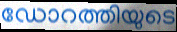
ഡോറത്തിയുടെ